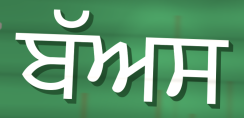
ਬੱਅਸ